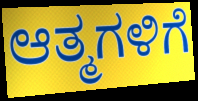
ಆತ್ಮಗಳಿಗೆ